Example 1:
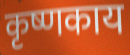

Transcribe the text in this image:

कृष्णकाय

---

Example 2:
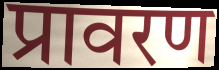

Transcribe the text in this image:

प्रावरण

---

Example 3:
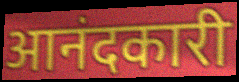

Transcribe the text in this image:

आनंदकारी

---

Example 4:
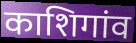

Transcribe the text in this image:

काशिगांव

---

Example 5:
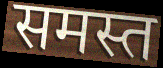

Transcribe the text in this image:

समस्त